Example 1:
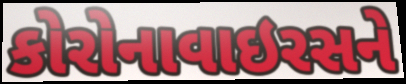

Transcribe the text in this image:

કોરોનાવાઇરસને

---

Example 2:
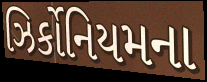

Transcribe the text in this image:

ઝિર્કોનિયમના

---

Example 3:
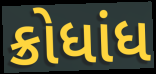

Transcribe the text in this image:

ક્રોધાંધ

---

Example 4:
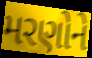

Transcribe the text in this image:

મરણોને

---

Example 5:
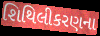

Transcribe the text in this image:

શિથિલીકરણના